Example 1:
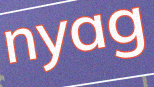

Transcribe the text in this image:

nyag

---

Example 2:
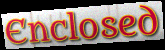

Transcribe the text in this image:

Enclosed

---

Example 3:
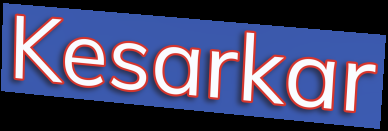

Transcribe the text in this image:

Kesarkar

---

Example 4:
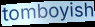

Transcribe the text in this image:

tomboyish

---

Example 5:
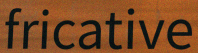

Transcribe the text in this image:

fricative